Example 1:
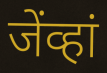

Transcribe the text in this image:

जेंव्हां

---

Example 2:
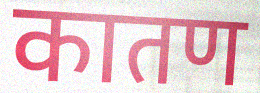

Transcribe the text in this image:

कातण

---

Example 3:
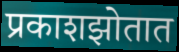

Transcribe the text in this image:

प्रकाशझोतात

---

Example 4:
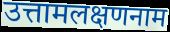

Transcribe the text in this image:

उत्तामलक्षणनाम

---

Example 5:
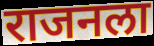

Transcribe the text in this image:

राजनला